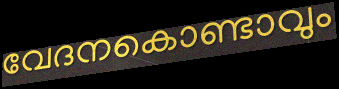
വേദനകൊണ്ടാവും